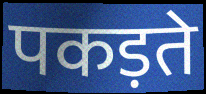
पकड़ते